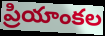
ప్రియాంకల